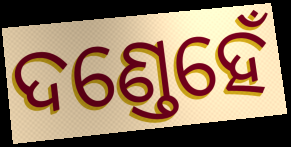
ଦଣ୍ଡେହେଁ